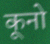
कूनो